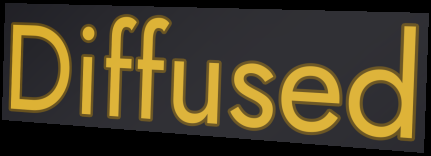
Diffused